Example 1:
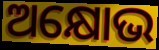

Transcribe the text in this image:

ଅକ୍ଷୋଭ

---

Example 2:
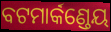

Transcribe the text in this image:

ବଟମାର୍କଣ୍ଡେୟ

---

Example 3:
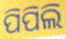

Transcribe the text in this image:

ପିପିଲି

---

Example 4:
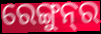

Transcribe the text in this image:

ରେଙ୍ଗୁନ୍‌ର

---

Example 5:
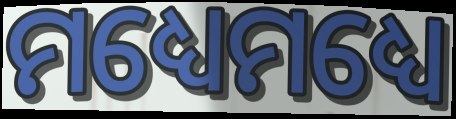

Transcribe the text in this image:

ମଧ୍ୟେମଧ୍ୟେ